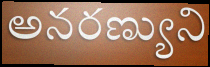
అనరణ్యుని